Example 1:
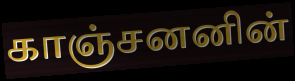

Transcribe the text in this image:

காஞ்சனனின்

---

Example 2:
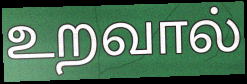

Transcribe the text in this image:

உறவால்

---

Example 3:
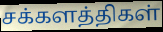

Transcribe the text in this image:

சக்களத்திகள்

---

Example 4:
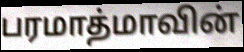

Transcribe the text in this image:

பரமாத்மாவின்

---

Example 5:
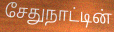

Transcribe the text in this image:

சேதுநாட்டின்